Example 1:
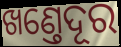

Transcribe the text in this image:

ଖଣ୍ତେଦୂର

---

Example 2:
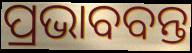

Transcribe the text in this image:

ପ୍ରଭାବବନ୍ତ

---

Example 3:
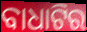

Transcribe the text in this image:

ବାଧାଟିର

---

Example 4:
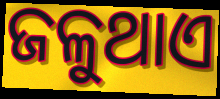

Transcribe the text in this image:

ଜଳୁଥାଏ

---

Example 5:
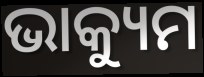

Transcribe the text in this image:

ଭାକ୍ୟୁମ